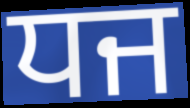
ਧਜ